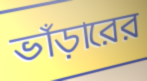
ভাঁড়ারের